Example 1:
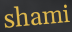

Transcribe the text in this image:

shami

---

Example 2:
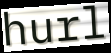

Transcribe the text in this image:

hurl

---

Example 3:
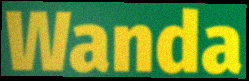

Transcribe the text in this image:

Wanda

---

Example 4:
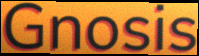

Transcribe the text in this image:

Gnosis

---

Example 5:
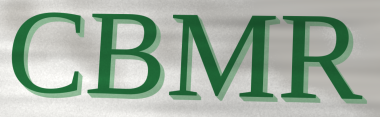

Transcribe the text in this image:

CBMR